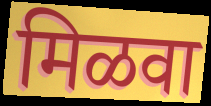
मिळवा